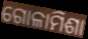
ଗୋଳାମିଶା